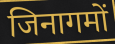
जिनागमों